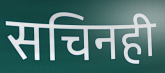
सचिनही